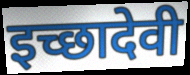
इच्छादेवी